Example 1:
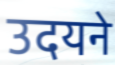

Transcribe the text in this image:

उदयने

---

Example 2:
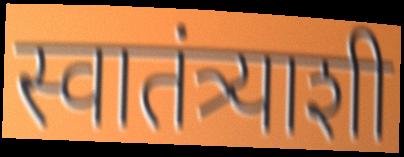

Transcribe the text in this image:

स्वातंत्र्याशी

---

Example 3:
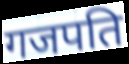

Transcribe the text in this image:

गजपति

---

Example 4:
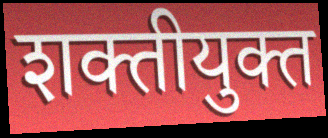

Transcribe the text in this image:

शक्तीयुक्त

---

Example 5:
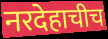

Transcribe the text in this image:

नरदेहाचीच